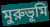
মুরুভূমি